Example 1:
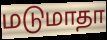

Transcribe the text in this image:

மடுமாதா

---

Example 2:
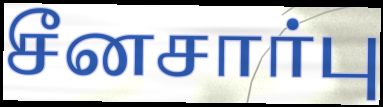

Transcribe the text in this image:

சீனசார்பு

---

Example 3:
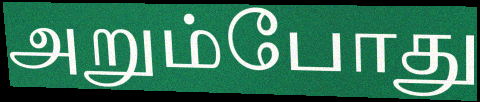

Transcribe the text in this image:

அறும்போது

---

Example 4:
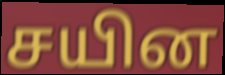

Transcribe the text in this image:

சயின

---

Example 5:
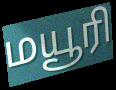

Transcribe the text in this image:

மயூரி